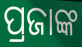
ପ୍ରଜାଙ୍କ